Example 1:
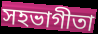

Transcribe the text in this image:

সহভাগীতা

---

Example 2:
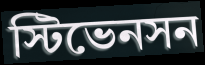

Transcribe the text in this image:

স্টিভেনসন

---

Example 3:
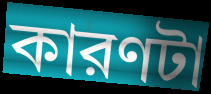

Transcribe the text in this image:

কারণটা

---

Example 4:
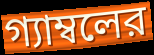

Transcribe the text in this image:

গ্যাম্বলের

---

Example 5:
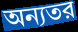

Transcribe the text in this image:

অন্যতর